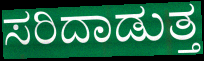
ಸರಿದಾಡುತ್ತ